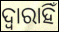
ଦ୍ୱାରାହିଁ